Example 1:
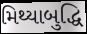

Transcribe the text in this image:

મિથ્યાબુદ્ધિ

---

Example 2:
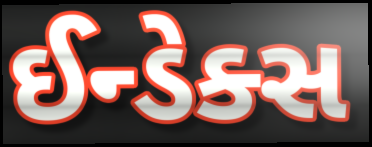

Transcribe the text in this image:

ઈન્ડેક્સ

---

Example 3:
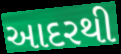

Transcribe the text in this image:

આદરથી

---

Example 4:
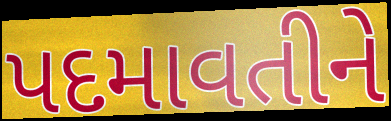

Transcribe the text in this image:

પદમાવતીને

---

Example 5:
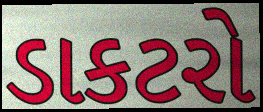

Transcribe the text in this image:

ડાકટરો